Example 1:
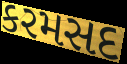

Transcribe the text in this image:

કરમસદ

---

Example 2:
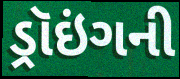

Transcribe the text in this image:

ડ્રૉઇંગની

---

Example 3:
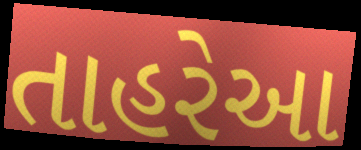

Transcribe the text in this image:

તાહરેઆ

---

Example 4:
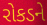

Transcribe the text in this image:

રોકડને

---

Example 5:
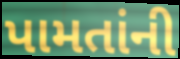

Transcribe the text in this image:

પામતાંની